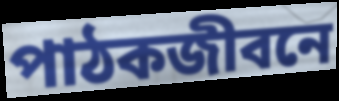
পাঠকজীবনে